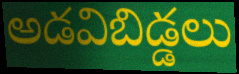
అడవిబిడ్డలు